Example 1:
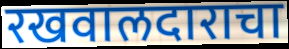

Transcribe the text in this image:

रखवालदाराचा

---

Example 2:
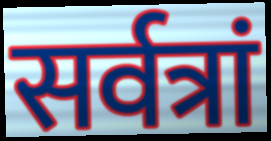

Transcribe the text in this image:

सर्वत्रां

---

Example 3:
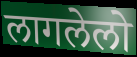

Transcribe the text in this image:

लागलेलो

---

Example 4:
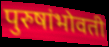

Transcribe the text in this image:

पुरुषांभोवती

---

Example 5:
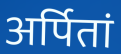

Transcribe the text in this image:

अर्पितां